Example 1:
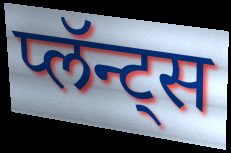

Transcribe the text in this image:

प्लॅन्ट्स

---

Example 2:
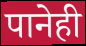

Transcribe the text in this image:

पानेही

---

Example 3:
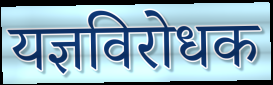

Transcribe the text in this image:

यज्ञविरोधक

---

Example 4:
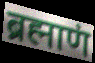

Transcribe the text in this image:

ब्रह्माणं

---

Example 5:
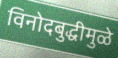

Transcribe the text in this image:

विनोदबुद्धीमुळे